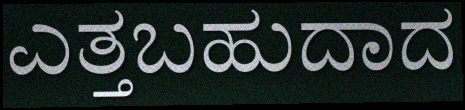
ಎತ್ತಬಹುದಾದ